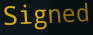
Signed